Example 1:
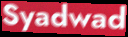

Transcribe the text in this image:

Syadwad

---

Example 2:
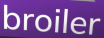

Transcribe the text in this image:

broiler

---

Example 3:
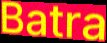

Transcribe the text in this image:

Batra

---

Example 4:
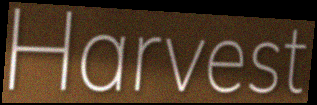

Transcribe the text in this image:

Harvest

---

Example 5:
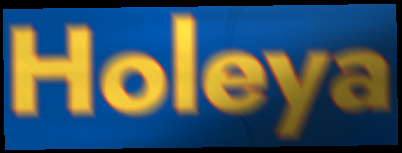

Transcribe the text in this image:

Holeya